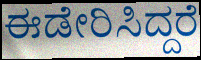
ಈಡೇರಿಸಿದ್ದರೆ